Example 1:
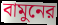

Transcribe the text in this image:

বামুনের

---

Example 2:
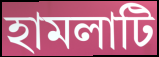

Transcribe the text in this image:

হামলাটি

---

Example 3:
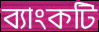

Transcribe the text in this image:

ব্যাংকটি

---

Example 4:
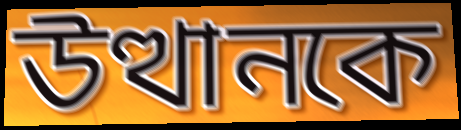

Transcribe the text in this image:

উত্থানকে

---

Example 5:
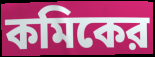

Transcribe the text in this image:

কমিকের